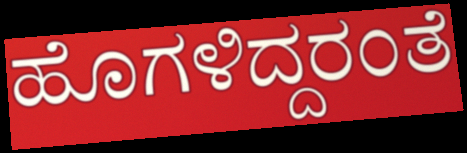
ಹೊಗಳಿದ್ದರಂತೆ